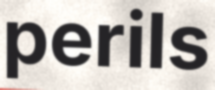
perils